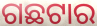
ଗଛଟାର